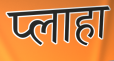
प्लाहा